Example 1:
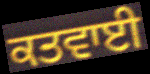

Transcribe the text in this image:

ਕਤਵਾਈ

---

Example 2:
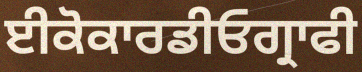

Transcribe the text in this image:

ਈਕੋਕਾਰਡੀਓਗ੍ਰਾਫੀ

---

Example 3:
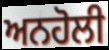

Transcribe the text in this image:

ਅਨਹੋਲੀ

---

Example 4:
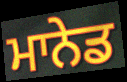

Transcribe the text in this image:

ਮਾਨੇਡ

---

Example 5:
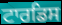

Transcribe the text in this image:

ਟਾਰਡਿਸ